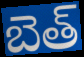
బెత్